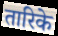
तारिके